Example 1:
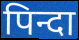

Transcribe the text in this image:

पिन्दा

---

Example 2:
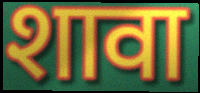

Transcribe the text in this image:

शावा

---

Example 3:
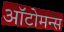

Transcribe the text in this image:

ऑटोमन्स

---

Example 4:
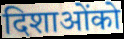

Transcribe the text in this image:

दिशाओंको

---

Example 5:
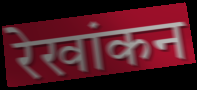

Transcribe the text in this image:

रेखांकन